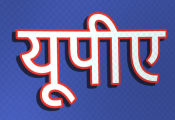
यूपीए